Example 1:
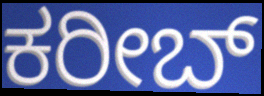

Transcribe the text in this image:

ಕರೀಬ್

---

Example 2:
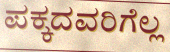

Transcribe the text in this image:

ಪಕ್ಕದವರಿಗೆಲ್ಲ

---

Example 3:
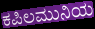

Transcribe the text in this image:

ಕಪಿಲಮುನಿಯ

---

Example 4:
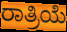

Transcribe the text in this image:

ರಾತ್ರಿಯೆ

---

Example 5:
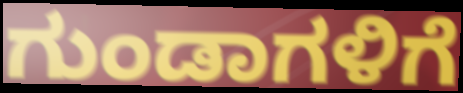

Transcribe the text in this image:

ಗುಂಡಾಗಳಿಗೆ